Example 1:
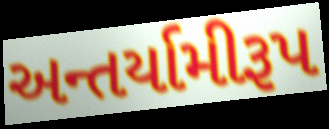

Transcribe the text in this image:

અન્તર્યામીરૂપ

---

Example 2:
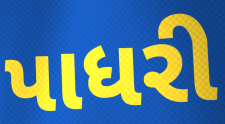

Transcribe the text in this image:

પાધરી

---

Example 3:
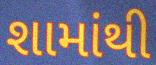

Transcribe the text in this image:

શામાંથી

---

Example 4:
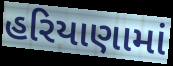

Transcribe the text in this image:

હરિયાણામાં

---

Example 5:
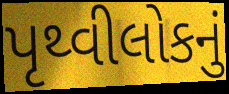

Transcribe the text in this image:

પૃથ્વીલોકનું